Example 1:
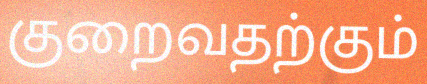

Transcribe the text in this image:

குறைவதற்கும்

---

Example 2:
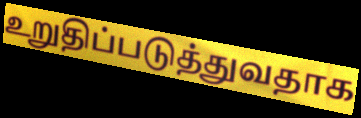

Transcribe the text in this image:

உறுதிப்படுத்துவதாக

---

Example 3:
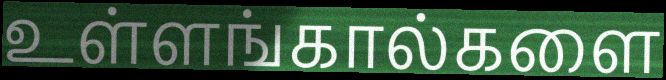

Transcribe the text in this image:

உள்ளங்கால்களை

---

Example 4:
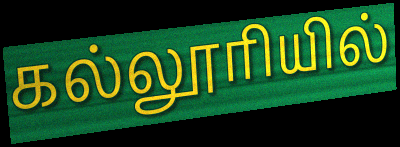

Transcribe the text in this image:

கல்லூரியில்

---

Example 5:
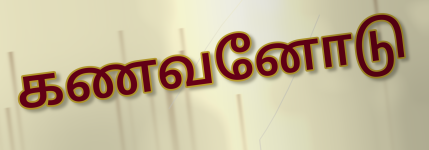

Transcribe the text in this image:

கணவனோடு